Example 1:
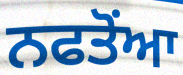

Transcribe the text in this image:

ਨਫਤੋਂਆ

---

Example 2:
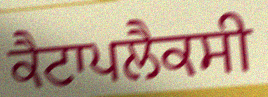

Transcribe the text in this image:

ਕੈਟਾਪਲੈਕਸੀ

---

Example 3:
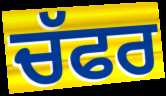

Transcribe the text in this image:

ਚੱਫਰ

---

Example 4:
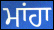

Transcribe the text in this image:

ਮਾਂਹਾ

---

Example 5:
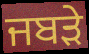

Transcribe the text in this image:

ਜਬੜੇ